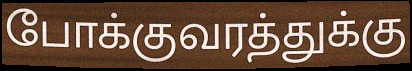
போக்குவரத்துக்கு